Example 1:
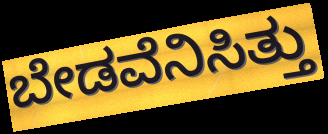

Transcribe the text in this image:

ಬೇಡವೆನಿಸಿತ್ತು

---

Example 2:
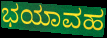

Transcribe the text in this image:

ಭಯಾವಹ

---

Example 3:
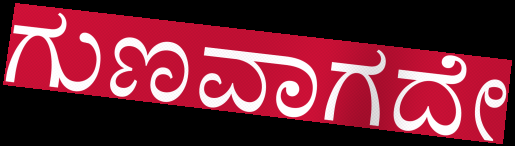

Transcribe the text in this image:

ಗುಣವಾಗದೇ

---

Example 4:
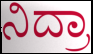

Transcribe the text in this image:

ನಿದ್ರಾ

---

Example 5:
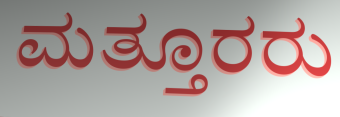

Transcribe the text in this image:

ಮತ್ತೂರರು